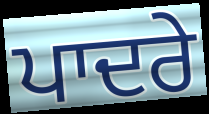
ਪਾਦਰੇ